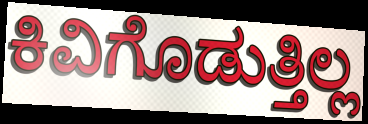
ಕಿವಿಗೊಡುತ್ತಿಲ್ಲ